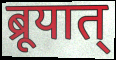
ब्रूयात्